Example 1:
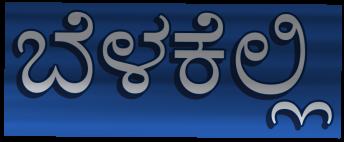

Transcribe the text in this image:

ಬೆಳಕೆಲ್ಲಿ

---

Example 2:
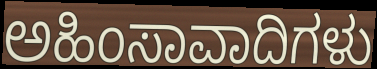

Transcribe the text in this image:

ಅಹಿಂಸಾವಾದಿಗಳು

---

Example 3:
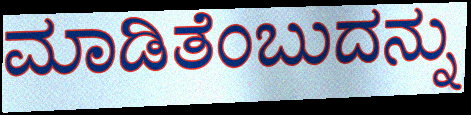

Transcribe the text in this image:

ಮಾಡಿತೆಂಬುದನ್ನು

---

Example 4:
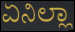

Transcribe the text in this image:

ಏನಿಲ್ಲಾ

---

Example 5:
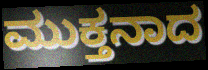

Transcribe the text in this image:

ಮುಕ್ತನಾದ